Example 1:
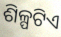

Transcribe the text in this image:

ଶିଳ୍ପଟିଏ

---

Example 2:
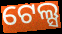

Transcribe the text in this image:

ଟେଲ୍ସ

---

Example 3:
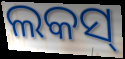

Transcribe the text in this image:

ଲକସ୍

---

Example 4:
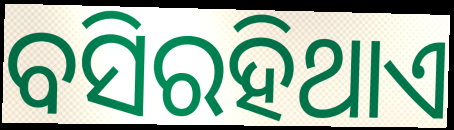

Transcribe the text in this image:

ବସିରହିଥାଏ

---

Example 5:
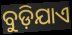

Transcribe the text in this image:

ବୁଡ଼ିଯାଏ